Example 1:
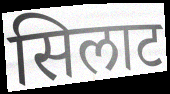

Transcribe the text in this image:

सिलाट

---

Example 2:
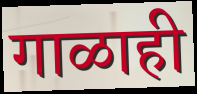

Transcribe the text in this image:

गाळाही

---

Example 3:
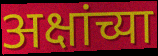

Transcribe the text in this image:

अक्षांच्या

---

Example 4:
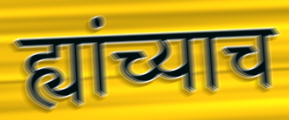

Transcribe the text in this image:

ह्यांच्याच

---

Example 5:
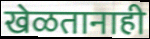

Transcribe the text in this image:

खेळतानाही